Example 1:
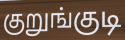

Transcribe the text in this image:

குறுங்குடி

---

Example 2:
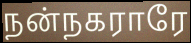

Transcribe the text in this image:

நன்நகராரே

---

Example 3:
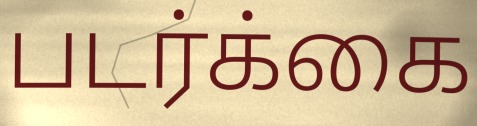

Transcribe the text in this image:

படர்க்கை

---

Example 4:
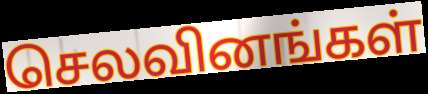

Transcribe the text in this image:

செலவினங்கள்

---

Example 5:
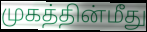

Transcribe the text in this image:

முகத்தின்மீது